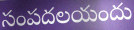
సంపదలయందు